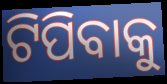
ଟିପିବାକୁ